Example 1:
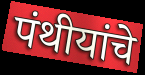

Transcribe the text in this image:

पंथीयांचे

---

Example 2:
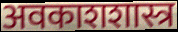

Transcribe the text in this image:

अवकाशशास्त्र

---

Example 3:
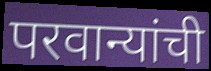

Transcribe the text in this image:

परवान्यांची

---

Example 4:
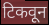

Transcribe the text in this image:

टिकवून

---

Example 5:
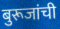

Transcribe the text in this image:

बुरूजांची